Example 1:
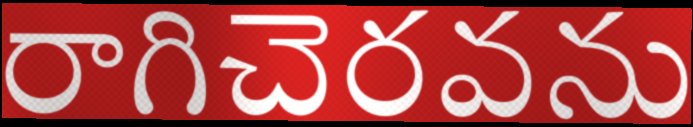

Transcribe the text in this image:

రాగిచెరవను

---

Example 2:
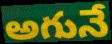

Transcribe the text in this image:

అగునే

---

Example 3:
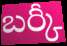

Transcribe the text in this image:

బర్కీ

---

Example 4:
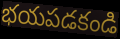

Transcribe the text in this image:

భయపడకండి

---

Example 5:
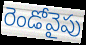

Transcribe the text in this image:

రెండోవైపు